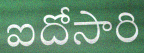
ఐదోసారి